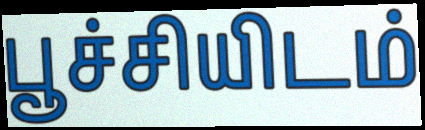
பூச்சியிடம்